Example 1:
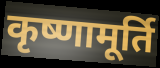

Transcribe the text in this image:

कृष्णामूर्ति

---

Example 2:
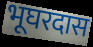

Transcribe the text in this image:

भूघरदास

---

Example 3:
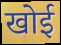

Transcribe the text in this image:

खोई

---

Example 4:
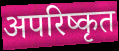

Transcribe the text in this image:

अपरिष्कृत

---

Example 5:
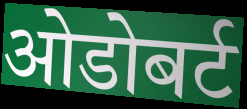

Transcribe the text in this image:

ओडोबर्ट